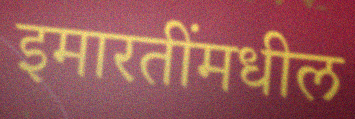
इमारतींमधील